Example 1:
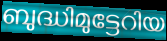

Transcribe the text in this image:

ബുദ്ധിമുട്ടേറിയ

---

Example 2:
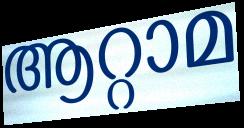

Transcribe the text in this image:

ആറ്റാമ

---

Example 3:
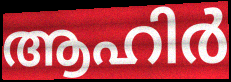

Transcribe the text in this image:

ആഹിർ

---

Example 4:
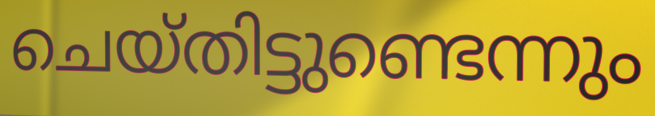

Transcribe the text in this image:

ചെയ്തിട്ടുണ്ടെന്നും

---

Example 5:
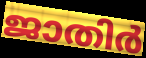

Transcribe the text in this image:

ജാതിർ